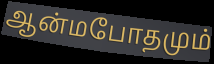
ஆன்மபோதமும்